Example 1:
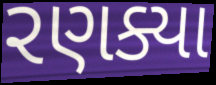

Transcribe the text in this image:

રણક્યા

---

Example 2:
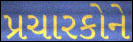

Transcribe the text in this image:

પ્રચારકોને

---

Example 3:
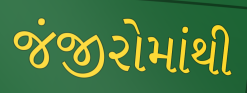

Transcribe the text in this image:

જંજીરોમાંથી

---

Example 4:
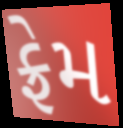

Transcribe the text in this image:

ફ્રેમ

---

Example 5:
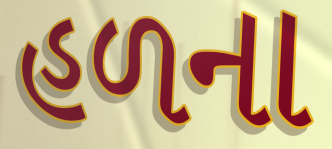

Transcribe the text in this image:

હળના